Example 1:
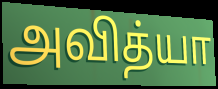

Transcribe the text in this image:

அவித்யா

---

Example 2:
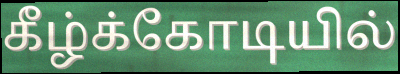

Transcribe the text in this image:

கீழ்க்கோடியில்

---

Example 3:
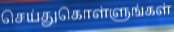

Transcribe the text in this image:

செய்துகொள்ளுங்கள்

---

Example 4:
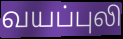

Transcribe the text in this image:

வயப்புலி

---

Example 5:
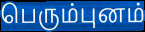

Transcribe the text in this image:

பெரும்புனம்